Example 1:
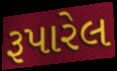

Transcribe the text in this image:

રૂપારેલ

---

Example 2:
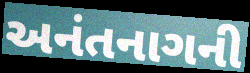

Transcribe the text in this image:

અનંતનાગની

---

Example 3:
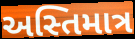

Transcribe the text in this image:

અસ્તિમાત્ર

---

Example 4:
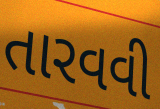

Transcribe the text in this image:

તારવવી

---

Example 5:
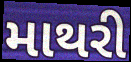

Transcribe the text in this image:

માથરી